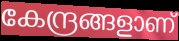
കേന്ദ്രങ്ങളാണ്